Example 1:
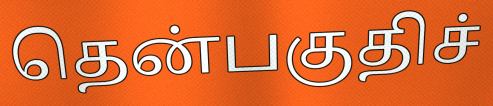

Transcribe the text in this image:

தென்பகுதிச்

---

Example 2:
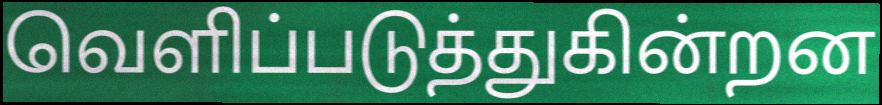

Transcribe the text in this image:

வெளிப்படுத்துகின்றன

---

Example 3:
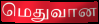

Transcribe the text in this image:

மெதுவான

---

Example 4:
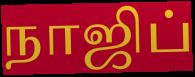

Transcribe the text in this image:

நாஜிப்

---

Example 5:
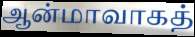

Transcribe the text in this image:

ஆன்மாவாகத்